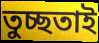
তুচ্ছতাই